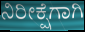
ನಿರೀಕ್ಷೆಗಾಗಿ